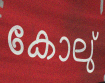
കോലു്